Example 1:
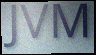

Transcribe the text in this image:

JVM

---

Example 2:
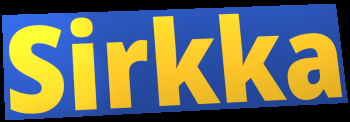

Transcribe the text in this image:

Sirkka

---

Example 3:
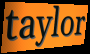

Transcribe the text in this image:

taylor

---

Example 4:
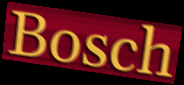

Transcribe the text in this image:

Bosch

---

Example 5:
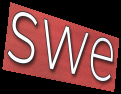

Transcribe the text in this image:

swe